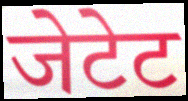
जेटेट